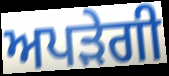
ਅਪੜੇਗੀ